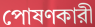
পোষণকারী